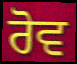
ਰੋਵ